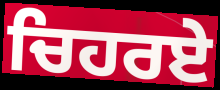
ਚਿਹਰਏ